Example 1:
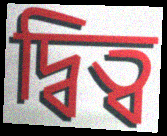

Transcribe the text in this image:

দ্বিত্ব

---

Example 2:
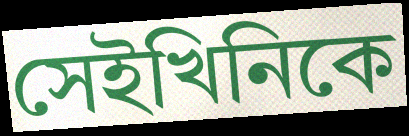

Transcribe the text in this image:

সেইখিনিকে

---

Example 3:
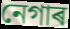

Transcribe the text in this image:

নেগাৰ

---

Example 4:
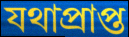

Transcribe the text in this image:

যথাপ্ৰাপ্ত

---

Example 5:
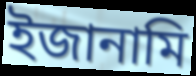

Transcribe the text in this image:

ইজানামি